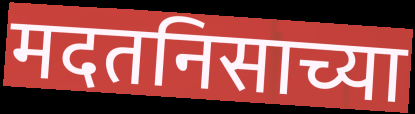
मदतनिसाच्या